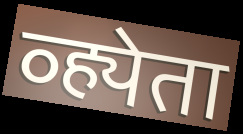
व्ह्येता